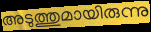
അടുത്തുമായിരുന്നു